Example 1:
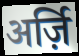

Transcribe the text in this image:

अर्ज़ि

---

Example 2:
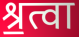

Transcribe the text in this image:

श्र॒त्वा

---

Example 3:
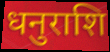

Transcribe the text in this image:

धनुराशि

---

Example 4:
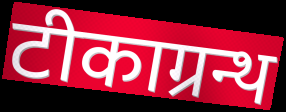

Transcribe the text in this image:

टीकाग्रन्थ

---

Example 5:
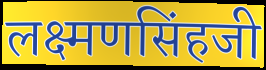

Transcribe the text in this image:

लक्ष्मणसिंहजी